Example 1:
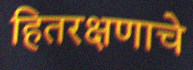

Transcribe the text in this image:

हितरक्षणाचे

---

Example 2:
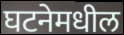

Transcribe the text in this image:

घटनेमधील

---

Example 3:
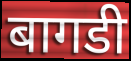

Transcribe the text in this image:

बागडी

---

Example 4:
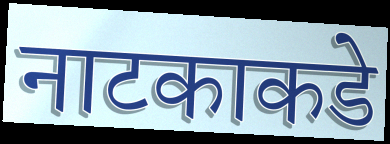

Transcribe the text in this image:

नाटकाकडे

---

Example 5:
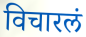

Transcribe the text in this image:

विचारलं